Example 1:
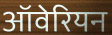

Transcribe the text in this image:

ऑवेरियन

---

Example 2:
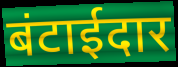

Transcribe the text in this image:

बंटाईदार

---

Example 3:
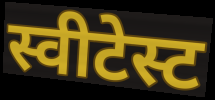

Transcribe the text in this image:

स्वीटेस्ट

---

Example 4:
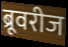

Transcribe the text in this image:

ब्रूवरीज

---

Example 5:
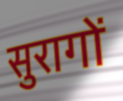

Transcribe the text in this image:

सुरागों